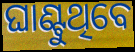
ଘାଣ୍ଟୁଥିବେ